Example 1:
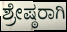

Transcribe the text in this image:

ಶ್ರೇಷ್ಠರಾಗಿ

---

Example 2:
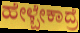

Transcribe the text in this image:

ಹೇಳ್ಬೇಕಾದ್ರೆ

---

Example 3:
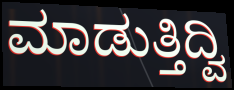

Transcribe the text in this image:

ಮಾಡುತ್ತಿದ್ವಿ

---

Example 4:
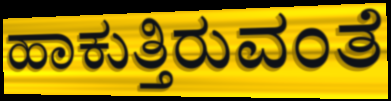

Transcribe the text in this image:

ಹಾಕುತ್ತಿರುವಂತೆ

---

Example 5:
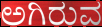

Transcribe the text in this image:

ಅಗಿರುವ